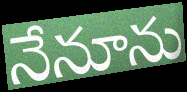
నేనూను